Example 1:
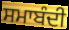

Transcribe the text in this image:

ਸਮਾਬੰਦੀ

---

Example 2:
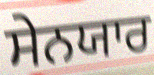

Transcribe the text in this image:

ਸੇਨਯਾਰ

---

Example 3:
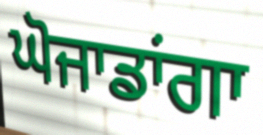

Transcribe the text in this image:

ਘੋਜਾਡਾਂਗਾ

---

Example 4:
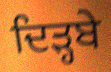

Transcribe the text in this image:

ਦਿੜ੍ਹਬੇ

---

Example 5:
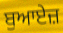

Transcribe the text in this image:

ਬੁਆਏਜ਼